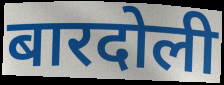
बारदोली